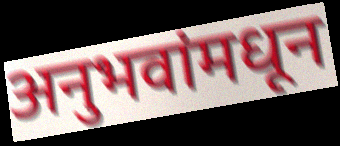
अनुभवांमधून